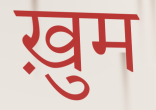
ख़ुम